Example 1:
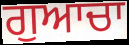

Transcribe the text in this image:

ਗੁਆਚਾ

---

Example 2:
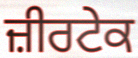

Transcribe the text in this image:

ਜ਼ੀਰਟੇਕ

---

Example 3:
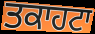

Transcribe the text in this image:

ਤਕਾਹਟਾ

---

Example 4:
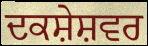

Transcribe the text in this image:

ਦਕਸ਼ੇਸ਼ਵਰ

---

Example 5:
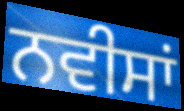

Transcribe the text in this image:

ਨਵੀਸਾਂ